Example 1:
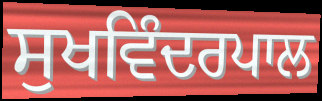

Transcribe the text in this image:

ਸੁਖਵਿੰਦਰਪਾਲ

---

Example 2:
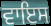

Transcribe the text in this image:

ਵਾਇਸ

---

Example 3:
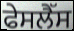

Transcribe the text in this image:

ਫੇਸਲੈੱਸ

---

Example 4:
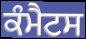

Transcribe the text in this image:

ਕੰਮੈਟਸ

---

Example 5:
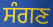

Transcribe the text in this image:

ਸੰਗਣ